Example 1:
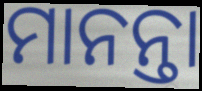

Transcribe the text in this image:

ମାନନ୍ତା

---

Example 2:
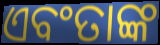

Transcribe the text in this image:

ଏବଂତାଙ୍କ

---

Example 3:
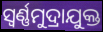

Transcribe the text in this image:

ସ୍ବର୍ଣ୍ଣମୁଦ୍ରାଯୁକ୍ତ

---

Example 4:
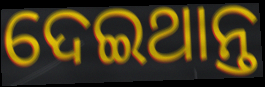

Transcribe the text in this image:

ଦେଇଥାନ୍ତ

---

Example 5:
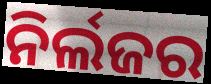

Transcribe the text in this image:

ନିର୍ଲଜର